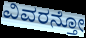
ವಿವರನ್ತೋ